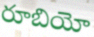
రూబియో